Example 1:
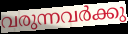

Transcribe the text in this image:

വരുന്നവർക്കു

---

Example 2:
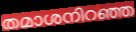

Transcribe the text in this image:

തമാശനിറഞ്ഞ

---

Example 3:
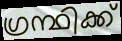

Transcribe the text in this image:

ഗ്രന്ഥിക്ക്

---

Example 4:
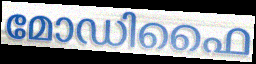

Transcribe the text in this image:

മോഡിഫൈ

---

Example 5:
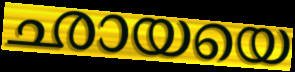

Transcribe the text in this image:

ഛായയെ